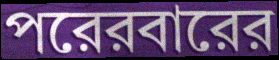
পরেরবারের